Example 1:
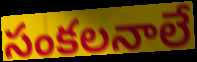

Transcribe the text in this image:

సంకలనాలే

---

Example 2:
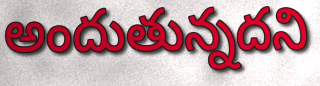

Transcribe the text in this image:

అందుతున్నదని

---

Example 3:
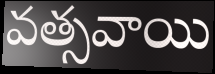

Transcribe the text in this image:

వత్సవాయి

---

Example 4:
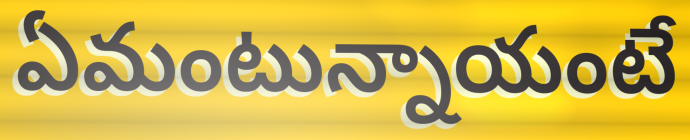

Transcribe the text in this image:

ఏమంటున్నాయంటే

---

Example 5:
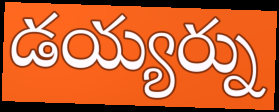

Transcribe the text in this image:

డయ్యర్ను